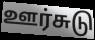
ஊர்சுடு